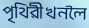
পৃথিৱীখনলৈ